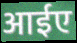
आईए